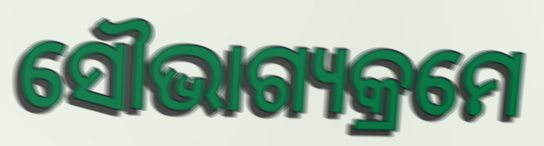
ସୌଭାଗ୍ୟକ୍ରମେ